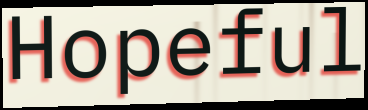
Hopeful